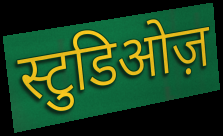
स्टुडिओज़